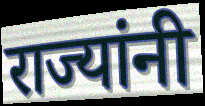
राज्यांनी